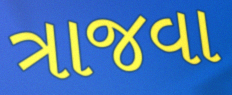
ત્રાજવા